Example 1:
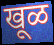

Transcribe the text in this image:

खूळ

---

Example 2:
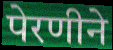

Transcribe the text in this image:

पेरणीने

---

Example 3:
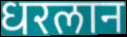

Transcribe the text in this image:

धरलान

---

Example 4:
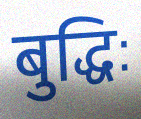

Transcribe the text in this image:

बुद्धिः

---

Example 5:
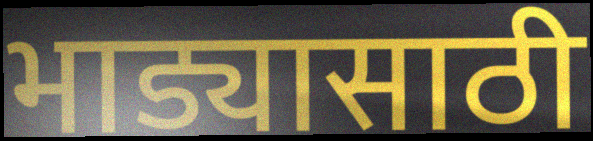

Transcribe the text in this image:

भाड्यासाठी